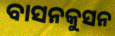
ବାସନକୁସନ